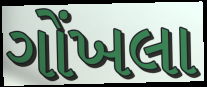
ગોંખલા